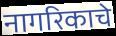
नागरिकाचे